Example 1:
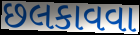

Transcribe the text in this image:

છલકાવવા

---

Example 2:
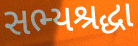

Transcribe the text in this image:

સભ્યશ્રદ્ધા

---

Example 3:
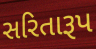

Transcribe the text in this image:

સરિતારૂપ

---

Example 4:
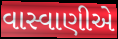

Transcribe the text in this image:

વાસ્વાણીએ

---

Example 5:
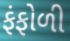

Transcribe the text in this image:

ફંફોળી